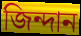
জিন্দান